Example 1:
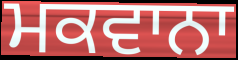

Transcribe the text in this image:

ਮਕਵਾਨਾ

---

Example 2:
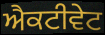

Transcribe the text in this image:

ਐਕਟੀਵੇਟ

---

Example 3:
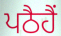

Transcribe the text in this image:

ਪਠੈਹੈਂ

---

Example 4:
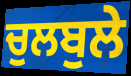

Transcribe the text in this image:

ਚੁਲਬੁਲੇ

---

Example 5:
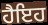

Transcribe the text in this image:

ਹੈਇਹ